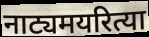
नाट्यमयरित्या